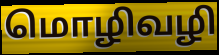
மொழிவழி